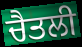
ਚੈਤਲੀ